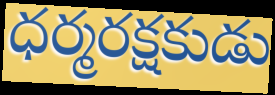
ధర్మరక్షకుడు